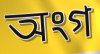
অংগ